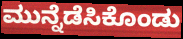
ಮುನ್ನೆಡೆಸಿಕೊಂಡು